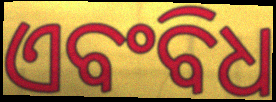
ଏବଂବିଧ